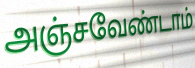
அஞ்சவேண்டாம்